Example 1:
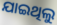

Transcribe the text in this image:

ଯାଇଥିଲୁ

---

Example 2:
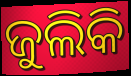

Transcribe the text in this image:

ଜୁଲିକି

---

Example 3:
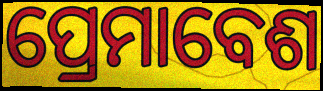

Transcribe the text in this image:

ପ୍ରେମାବେଶ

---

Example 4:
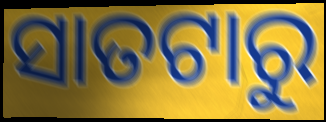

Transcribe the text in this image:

ସାତଟାରୁ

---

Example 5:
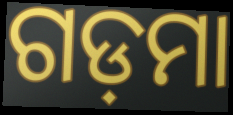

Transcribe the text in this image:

ଗଡ଼ମା